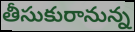
తీసుకురానున్న